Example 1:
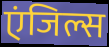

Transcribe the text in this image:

एंजिल्‍स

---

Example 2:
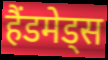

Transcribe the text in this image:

हैंडमेड्स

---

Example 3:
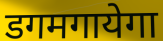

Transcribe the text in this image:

डगमगायेगा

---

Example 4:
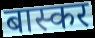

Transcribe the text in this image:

बास्कर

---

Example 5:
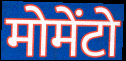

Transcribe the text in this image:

मोमेंटो